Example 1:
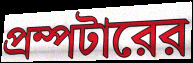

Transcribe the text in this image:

প্রম্পটারের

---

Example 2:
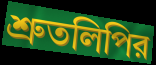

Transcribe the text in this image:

শ্রুতলিপির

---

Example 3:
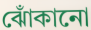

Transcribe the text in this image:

ঝোঁকানো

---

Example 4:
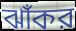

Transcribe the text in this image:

ঝাঁকর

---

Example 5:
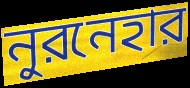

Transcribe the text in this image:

নুরনেহার